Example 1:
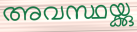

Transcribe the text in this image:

അവസ്ഥയ്ക്കു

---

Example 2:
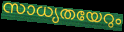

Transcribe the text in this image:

സാധ്യതയേറും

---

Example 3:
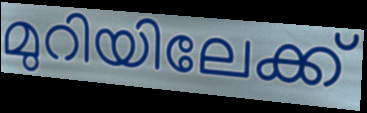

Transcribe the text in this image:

മുറിയിലേക്ക്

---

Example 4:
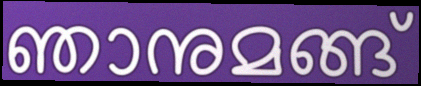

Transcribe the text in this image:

ഞാനുമങ്ങ്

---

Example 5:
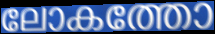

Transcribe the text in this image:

ലോകത്തോ